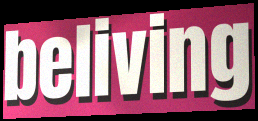
beliving